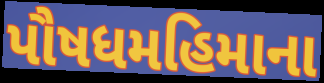
પૌષધમહિમાના